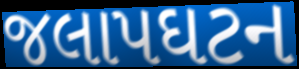
જલાપઘટન